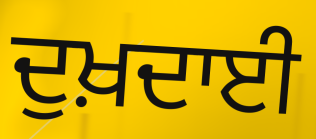
ਦੁਖ਼ਦਾਈ